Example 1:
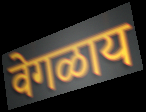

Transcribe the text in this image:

वेगळाय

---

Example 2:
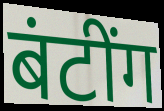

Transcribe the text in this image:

बंटींग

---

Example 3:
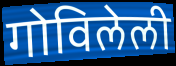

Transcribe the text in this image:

गोविलेली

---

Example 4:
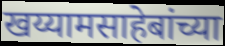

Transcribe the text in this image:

खय्यामसाहेबांच्या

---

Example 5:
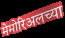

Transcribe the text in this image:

मेमोरिअलच्या